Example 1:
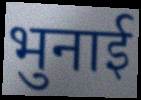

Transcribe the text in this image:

भुनाई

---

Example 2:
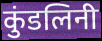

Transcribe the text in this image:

कुंडलिनी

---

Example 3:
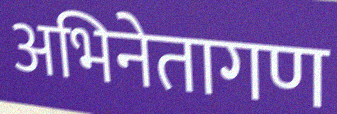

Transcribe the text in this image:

अभिनेतागण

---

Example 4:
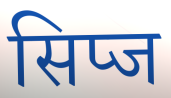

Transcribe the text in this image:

सिप्ज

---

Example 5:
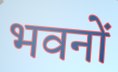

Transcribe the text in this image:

भवनों